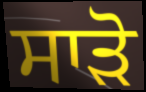
ਸਾੜੋ